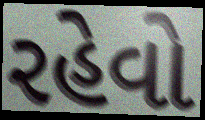
રહેવો